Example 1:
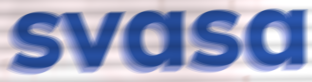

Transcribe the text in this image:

svasa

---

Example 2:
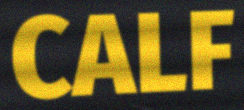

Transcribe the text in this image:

CALF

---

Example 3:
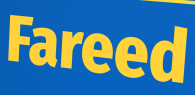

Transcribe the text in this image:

Fareed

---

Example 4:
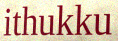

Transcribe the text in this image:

ithukku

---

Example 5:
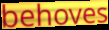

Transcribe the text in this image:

behoves